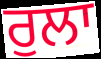
ਰੁਲਾ